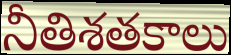
నీతిశతకాలు